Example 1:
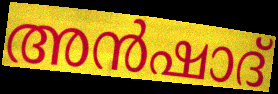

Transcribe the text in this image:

അൻഷാദ്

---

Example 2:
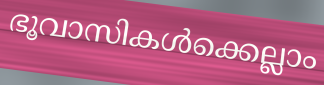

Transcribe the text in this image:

ഭൂവാസികൾക്കെല്ലാം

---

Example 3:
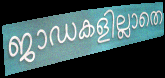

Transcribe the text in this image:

ജാഡകളില്ലാതെ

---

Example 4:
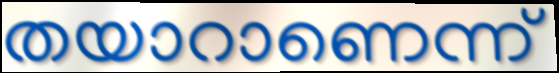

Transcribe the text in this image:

തയാറാണെന്ന്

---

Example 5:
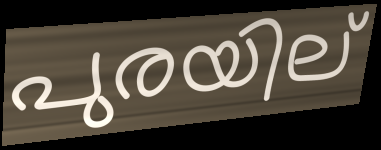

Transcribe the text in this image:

പുരയില്